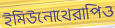
ইমিউনোথেরাপিও